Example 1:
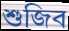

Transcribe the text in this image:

শুজিব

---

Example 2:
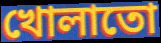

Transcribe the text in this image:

খোলাতো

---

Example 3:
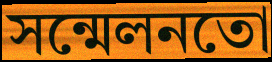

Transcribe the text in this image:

সন্মেলনতো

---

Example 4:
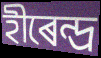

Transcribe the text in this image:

হীৰেন্দ্ৰ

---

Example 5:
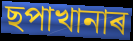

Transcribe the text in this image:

ছপাখানাৰ